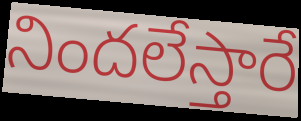
నిందలేస్తారే